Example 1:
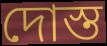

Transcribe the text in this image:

দোস্ত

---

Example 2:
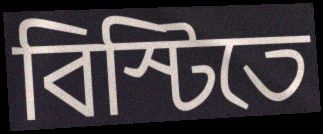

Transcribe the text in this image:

বিস্টিতে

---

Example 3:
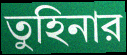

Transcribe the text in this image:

তুহিনার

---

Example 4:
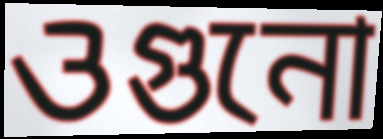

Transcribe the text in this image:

ওগুনো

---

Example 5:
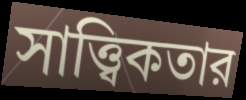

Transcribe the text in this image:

সাত্ত্বিকতার